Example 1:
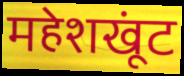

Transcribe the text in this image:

महेशखूंट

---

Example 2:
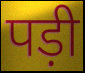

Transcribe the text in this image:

पड़ी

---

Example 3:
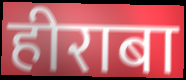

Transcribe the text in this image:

हीराबा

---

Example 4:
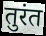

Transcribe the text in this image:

तुरंत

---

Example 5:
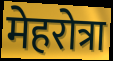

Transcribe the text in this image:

मेहरोत्रा